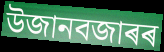
উজানবজাৰৰ